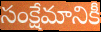
సంక్షేమానికీ